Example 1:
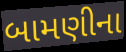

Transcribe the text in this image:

બામણીના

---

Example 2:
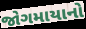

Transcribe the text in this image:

જોગમાયાનો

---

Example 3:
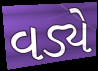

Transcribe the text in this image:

વડ્યે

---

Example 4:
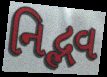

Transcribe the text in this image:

નિદ્ભવ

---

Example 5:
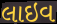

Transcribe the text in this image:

લાઇવ